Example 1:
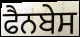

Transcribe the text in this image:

ਫੈਨਬੇਸ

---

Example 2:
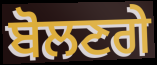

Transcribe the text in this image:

ਬੋਲਣਗੇ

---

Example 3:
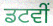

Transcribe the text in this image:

ਡਟਵੀਂ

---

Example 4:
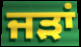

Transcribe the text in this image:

ਜੜਾਂ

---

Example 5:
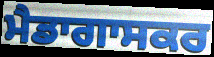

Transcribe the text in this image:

ਮੈਡਾਗਾਸਕਰ